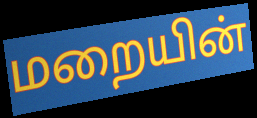
மறையின்